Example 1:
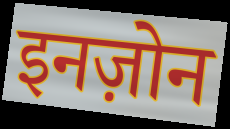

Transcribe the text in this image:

इनज़ोन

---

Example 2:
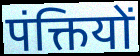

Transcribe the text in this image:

पंक्तियों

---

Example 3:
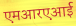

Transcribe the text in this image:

एमआरएआई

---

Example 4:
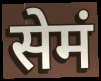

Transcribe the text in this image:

सेमं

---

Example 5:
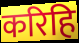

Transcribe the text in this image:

करिहि